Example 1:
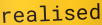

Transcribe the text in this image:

realised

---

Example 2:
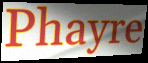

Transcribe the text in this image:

Phayre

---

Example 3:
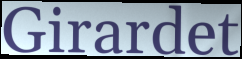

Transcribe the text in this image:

Girardet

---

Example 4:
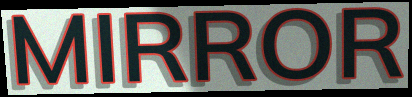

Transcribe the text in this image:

MIRROR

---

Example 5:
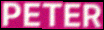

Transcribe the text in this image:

PETER